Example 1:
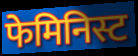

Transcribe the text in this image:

फेमिनिस्ट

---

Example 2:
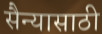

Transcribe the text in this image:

सैन्यासाठी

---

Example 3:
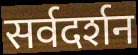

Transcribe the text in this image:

सर्वदर्शन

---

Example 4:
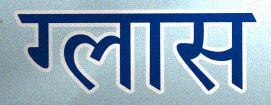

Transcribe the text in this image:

ग्लास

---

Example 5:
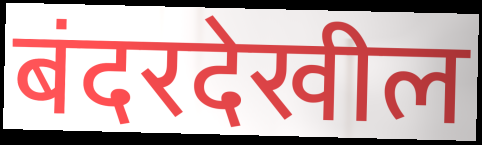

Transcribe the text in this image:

बंदरदेखील